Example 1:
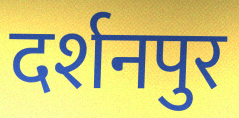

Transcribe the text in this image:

दर्शनपुर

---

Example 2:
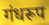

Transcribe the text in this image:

गंधरूप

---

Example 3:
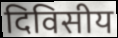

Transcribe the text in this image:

दिविसीय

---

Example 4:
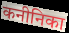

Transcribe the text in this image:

कनीनिका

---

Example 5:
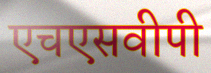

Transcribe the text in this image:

एचएसवीपी